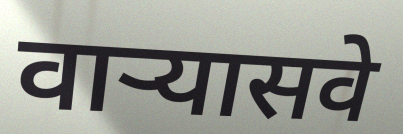
वाऱ्यासवे